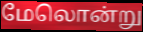
மேலொன்று